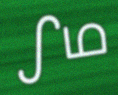
ഽഥ